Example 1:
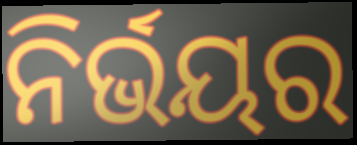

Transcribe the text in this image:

ନିର୍ଭୟର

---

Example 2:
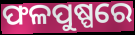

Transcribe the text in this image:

ଫଳପୁଷ୍ପରେ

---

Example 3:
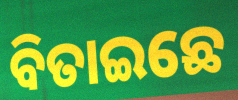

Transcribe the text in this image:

ବିତାଇଛେ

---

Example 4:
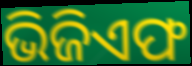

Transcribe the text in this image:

ଭିଜିଏଫ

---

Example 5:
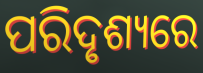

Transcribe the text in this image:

ପରିଦୃଶ୍ୟରେ